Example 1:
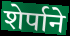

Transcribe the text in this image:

शेर्पाने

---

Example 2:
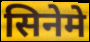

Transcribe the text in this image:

सिनेमे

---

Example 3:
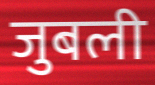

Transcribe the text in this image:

जुबली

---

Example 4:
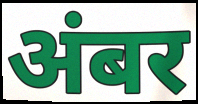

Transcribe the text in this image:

अंबर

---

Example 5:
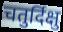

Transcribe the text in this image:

चतुर्दिक्षु